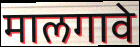
मालगावे